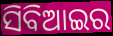
ସିବିଆଇର